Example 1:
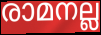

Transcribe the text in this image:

രാമനല്ല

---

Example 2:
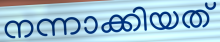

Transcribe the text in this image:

നന്നാക്കിയത്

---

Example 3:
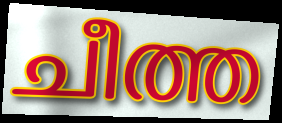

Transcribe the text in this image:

ചീത്ത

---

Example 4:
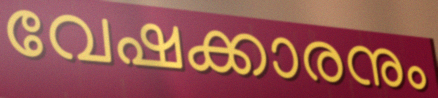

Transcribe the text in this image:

വേഷക്കാരനും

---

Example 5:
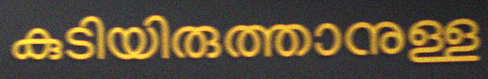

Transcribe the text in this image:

കുടിയിരുത്താനുള്ള